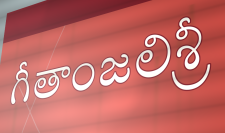
గీతాంజలిశ్రీ